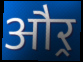
औ्रर